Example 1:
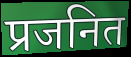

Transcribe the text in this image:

प्रजनित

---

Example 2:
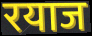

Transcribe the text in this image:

रयाज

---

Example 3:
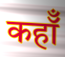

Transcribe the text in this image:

कहॉँ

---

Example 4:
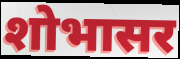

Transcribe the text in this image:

शोभासर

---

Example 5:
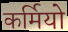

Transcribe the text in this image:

कर्मियो